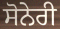
ਸੋਨੇਰੀ